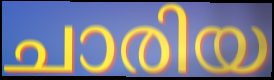
ചാരിയ